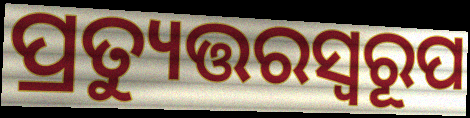
ପ୍ରତ୍ୟୁତ୍ତରସ୍ଵରୂପ